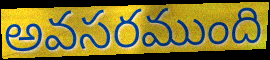
అవసరముంది